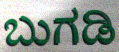
ಬುಗಡಿ